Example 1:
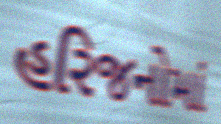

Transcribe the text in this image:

હરિજનોમાં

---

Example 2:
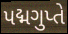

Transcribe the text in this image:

પદ્મગુપ્તે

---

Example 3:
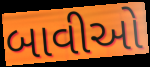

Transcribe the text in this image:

બાવીઓ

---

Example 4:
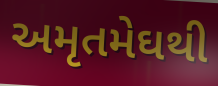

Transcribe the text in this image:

અમૃતમેઘથી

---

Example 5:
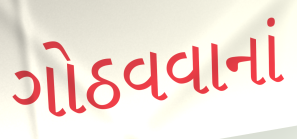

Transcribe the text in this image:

ગોઠવવાનાં